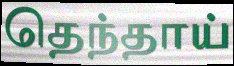
தெந்தாய்